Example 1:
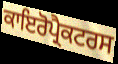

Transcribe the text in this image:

ਕਾਇਰੋਪ੍ਰੈਕਟਰਸ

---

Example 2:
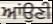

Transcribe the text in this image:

ਆਂਉਣੀ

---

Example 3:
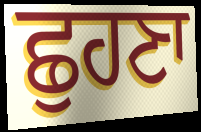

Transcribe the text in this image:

ਛੁਹਣਾ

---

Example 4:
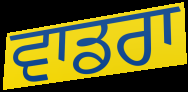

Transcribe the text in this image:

ਵਾਡਰਾ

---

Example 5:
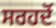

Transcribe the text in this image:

ਸਰਹਦੋਂ